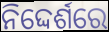
ନିଦ୍ଦେର୍ଶରେ